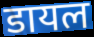
डायल